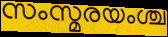
സംസ്മരയംശ്ച